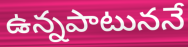
ఉన్నపాటుననే